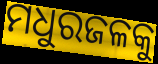
ମଧୁରଜଳକୁ